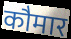
कौमार